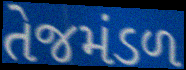
તેજમંડળ